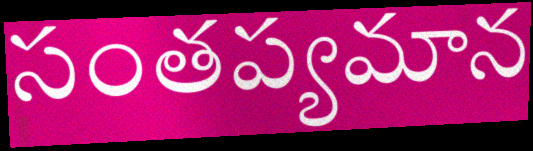
సంతప్యమాన